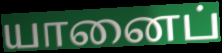
யானைப்